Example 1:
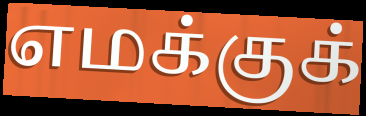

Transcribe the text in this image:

எமக்குக்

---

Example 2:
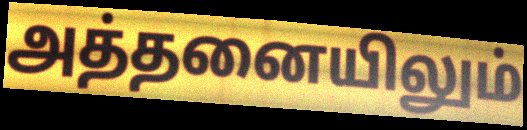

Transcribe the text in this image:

அத்தனையிலும்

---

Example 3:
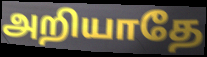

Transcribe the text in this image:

அறியாதே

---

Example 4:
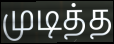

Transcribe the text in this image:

முடித்த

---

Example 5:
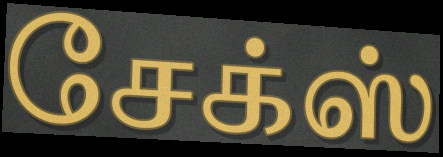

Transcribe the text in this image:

சேக்ஸ்